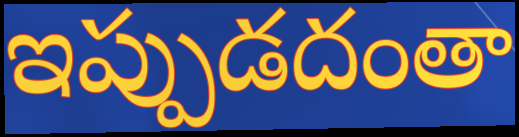
ఇప్పుడదంతా